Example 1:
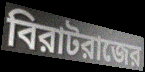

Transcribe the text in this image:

বিরাটরাজের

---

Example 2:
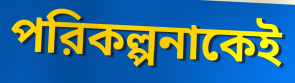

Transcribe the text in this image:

পরিকল্পনাকেই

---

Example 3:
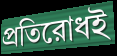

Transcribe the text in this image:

প্রতিরোধই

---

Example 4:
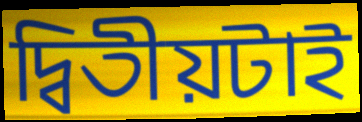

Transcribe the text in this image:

দ্বিতীয়টাই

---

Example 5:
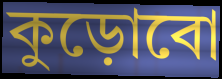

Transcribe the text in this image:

কুড়োবো